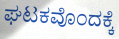
ಘಟಕವೊಂದಕ್ಕೆ